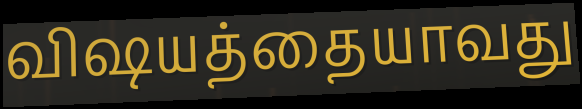
விஷயத்தையாவது